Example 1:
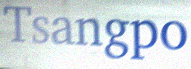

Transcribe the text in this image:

Tsangpo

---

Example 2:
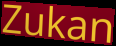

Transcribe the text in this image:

Zukan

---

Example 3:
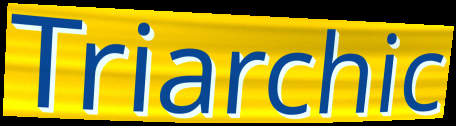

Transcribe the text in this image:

Triarchic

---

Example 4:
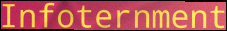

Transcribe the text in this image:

Infoternment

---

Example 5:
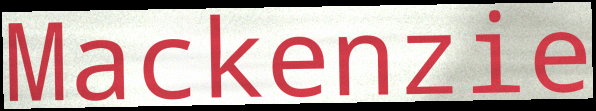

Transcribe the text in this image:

Mackenzie